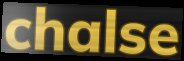
chalse